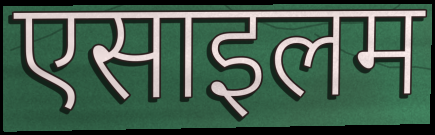
एसाइलम